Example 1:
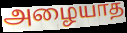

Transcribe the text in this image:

அழையாத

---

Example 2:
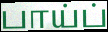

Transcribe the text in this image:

பாய்ப்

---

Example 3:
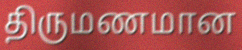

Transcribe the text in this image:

திருமணமான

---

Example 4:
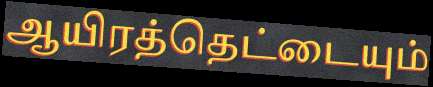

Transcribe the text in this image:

ஆயிரத்தெட்டையும்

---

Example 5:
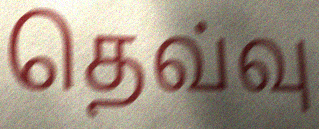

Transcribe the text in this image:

தெவ்வு